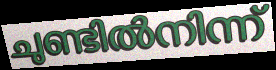
ചുണ്ടിൽനിന്ന്